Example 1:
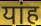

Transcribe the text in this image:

यांह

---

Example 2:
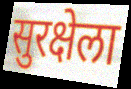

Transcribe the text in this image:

सुरक्षेला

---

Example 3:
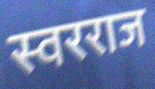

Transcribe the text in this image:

स्वरराज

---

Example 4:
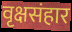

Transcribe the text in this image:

वृक्षसंहार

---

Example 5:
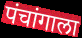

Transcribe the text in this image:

पंचांगाला